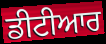
ਡੀਟੀਆਰ